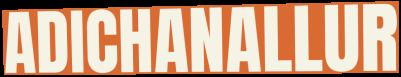
ADICHANALLUR